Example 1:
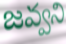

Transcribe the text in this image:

జవ్వని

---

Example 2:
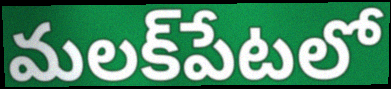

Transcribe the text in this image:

మలక్‌పేటలో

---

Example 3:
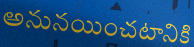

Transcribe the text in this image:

అనునయించటానికి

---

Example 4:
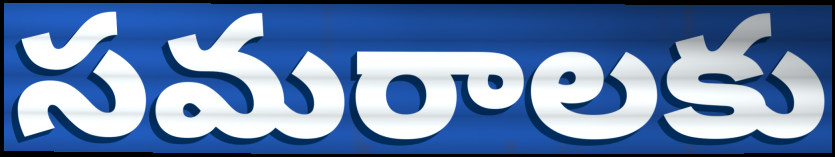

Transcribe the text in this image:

సమరాలకు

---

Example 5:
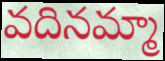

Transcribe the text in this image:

వదినమ్మా